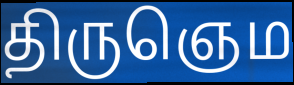
திருஞெம